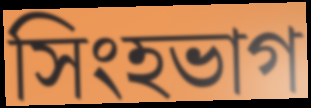
সিংহভাগ